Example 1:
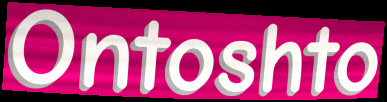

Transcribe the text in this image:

Ontoshto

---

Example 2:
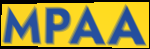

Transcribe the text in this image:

MPAA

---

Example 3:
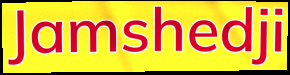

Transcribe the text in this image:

Jamshedji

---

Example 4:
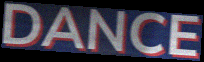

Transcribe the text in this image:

DANCE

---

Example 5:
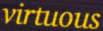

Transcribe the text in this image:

virtuous